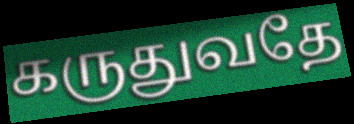
கருதுவதே